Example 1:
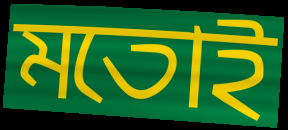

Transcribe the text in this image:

মতোই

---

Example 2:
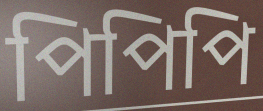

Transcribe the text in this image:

পিপিপি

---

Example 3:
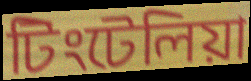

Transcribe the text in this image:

টিংটেলিয়া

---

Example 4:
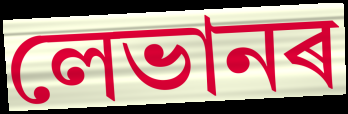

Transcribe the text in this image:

লেভানৰ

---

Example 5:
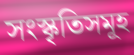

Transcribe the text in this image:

সংস্কৃতিসমূহ